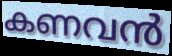
കണവൻ